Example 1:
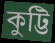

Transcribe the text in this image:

কুট্টি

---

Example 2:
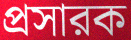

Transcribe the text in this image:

প্রসারক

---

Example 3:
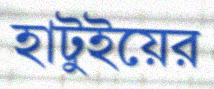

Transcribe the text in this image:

হাটুইয়ের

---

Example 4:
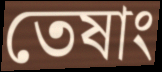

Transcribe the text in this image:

তেষাং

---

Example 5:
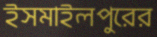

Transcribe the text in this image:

ইসমাইলপুরের